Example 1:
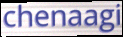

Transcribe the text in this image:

chenaagi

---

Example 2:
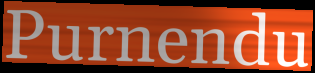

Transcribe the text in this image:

Purnendu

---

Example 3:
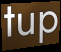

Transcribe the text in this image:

tup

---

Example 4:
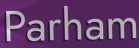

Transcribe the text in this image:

Parham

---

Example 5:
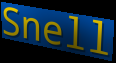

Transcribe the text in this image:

Snell